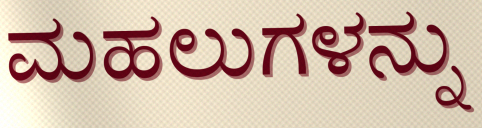
ಮಹಲುಗಳನ್ನು